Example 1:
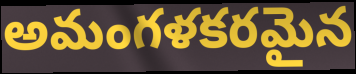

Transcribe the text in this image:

అమంగళకరమైన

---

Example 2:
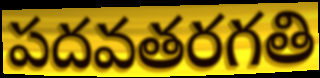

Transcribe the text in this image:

పదవతరగతి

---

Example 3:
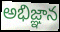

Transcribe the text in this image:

అభిజ్ఞాన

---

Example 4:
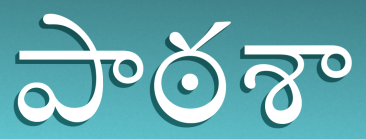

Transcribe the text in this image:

పాఠశా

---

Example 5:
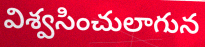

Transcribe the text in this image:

విశ్వసించులాగున